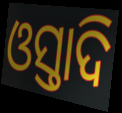
ଓସ୍ତାଦି